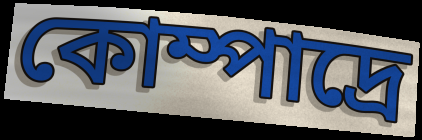
কোম্পাদ্রে